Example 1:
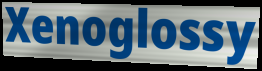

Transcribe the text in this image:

Xenoglossy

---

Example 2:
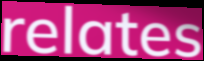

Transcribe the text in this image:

relates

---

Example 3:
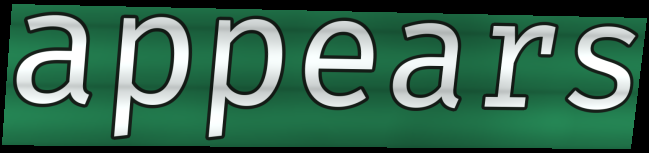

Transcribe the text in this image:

appears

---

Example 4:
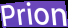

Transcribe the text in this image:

Prion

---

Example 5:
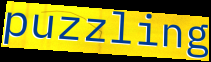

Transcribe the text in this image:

puzzling